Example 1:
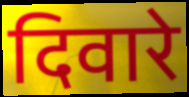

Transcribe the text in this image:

दिवारे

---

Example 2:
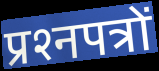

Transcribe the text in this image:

प्रश्नपत्रों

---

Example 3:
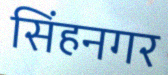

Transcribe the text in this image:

सिंहनगर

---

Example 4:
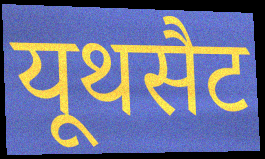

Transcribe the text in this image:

यूथसैट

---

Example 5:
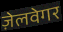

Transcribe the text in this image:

ज़ेलवेगर